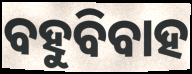
ବହୁବିବାହ